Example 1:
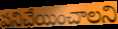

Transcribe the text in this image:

పనిచేయించాలని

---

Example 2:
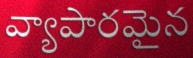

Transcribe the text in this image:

వ్యాపారమైన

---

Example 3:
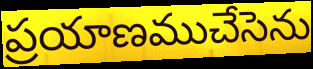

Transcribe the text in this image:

ప్రయాణముచేసెను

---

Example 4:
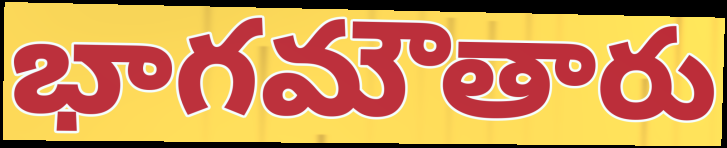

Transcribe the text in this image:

భాగమౌతారు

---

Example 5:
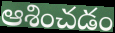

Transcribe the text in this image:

ఆశించడం